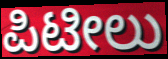
ಪಿಟೀಲು